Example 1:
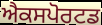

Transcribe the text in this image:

ਐਕਸਪੋਰਟਡ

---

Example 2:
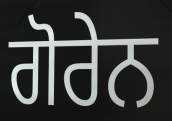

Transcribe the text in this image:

ਗੋਰੇਨ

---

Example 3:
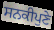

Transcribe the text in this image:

ਸਨਕੀਪੁਣੇ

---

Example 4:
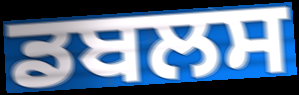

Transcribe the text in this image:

ਡਬਲਸ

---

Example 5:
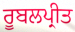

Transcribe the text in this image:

ਰੂਬਲਪ੍ਰੀਤ